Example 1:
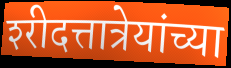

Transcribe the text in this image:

श्रीदत्तात्रेयांच्या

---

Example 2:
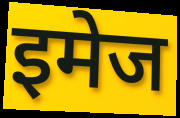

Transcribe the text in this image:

इमेज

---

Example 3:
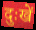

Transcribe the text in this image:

दुःखें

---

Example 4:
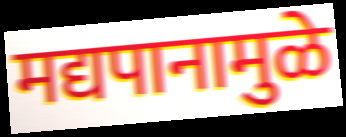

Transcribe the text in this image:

मद्यपानामुळे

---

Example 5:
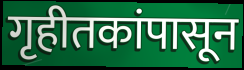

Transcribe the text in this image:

गृहीतकांपासून